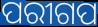
ପରୀଗପ